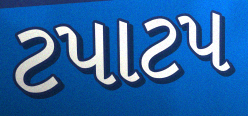
ટપાટપ